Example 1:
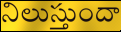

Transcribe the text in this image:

నిలుస్తుందా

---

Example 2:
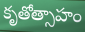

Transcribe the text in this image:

కృతోత్సాహం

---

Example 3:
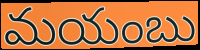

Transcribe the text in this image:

మయంబు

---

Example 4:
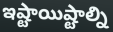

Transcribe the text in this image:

ఇష్టాయిష్టాల్ని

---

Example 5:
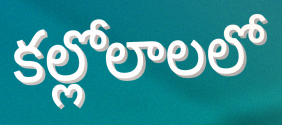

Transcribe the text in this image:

కల్లోలాలలో